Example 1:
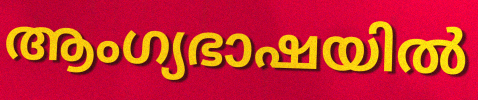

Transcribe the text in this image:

ആംഗ്യഭാഷയിൽ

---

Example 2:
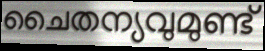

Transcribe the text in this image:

ചൈതന്യവുമുണ്ട്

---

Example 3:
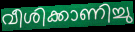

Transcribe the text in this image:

വീശിക്കാണിച്ചു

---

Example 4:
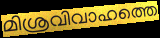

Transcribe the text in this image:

മിശ്രവിവാഹത്തെ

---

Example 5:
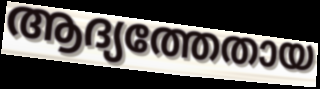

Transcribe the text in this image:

ആദ്യത്തേതായ